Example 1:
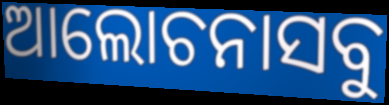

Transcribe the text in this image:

ଆଲୋଚନାସବୁ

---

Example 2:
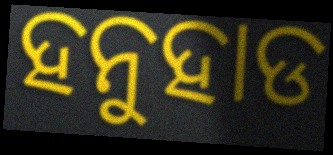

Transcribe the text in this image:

ହନୁହାଡ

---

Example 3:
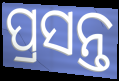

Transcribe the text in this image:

ପ୍ରସନ୍ତ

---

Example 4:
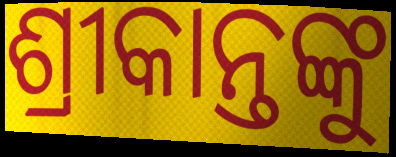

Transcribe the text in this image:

ଶ୍ରୀକାନ୍ତଙ୍କୁ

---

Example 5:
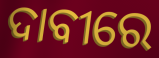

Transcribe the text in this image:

ଦାବୀରେ